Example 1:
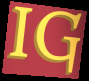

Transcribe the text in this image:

IG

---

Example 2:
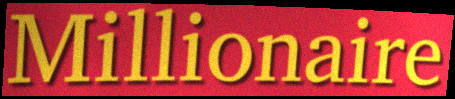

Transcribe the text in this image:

Millionaire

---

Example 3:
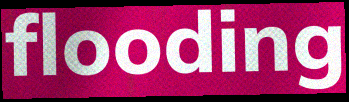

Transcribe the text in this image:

flooding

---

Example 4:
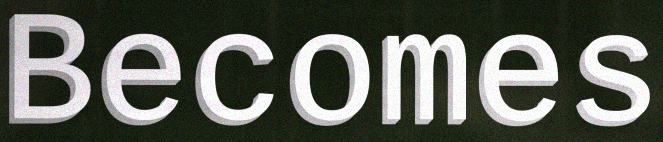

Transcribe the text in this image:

Becomes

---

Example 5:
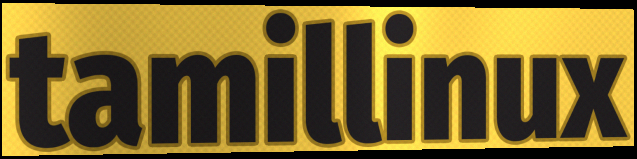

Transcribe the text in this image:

tamillinux